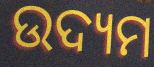
ଉଦ୍ୟମ